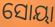
ସୋୟା